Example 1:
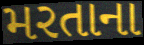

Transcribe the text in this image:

મરતાના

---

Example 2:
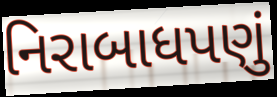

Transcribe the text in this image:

નિરાબાધપણું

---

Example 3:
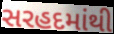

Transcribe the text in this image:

સરહદમાંથી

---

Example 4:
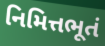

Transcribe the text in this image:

નિમિત્તભૂતં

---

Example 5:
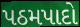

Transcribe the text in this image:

પઠમપાદો